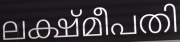
ലക്ഷ്മീപതി